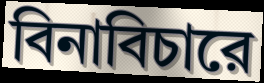
বিনাবিচারে